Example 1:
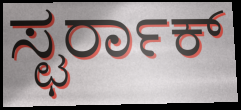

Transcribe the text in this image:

ಸ್ಟರ್ರಾಕ್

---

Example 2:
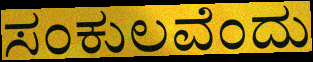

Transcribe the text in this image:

ಸಂಕುಲವೆಂದು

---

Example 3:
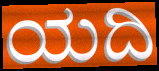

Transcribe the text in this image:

ಯದಿ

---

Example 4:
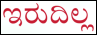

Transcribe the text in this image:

ಇರುದಿಲ್ಲ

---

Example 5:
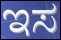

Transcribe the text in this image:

ಇಸ